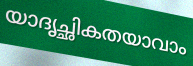
യാദൃച്ഛികതയാവാം